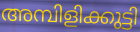
അമ്പിളിക്കുട്ടി